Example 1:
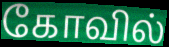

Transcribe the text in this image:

கோவில்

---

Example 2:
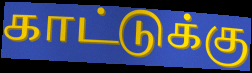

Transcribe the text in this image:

காட்டுக்கு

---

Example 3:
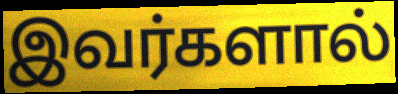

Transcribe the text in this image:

இவர்களால்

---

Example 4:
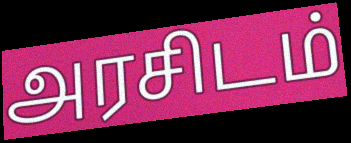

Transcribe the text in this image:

அரசிடம்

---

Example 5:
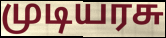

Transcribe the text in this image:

முடியரசு